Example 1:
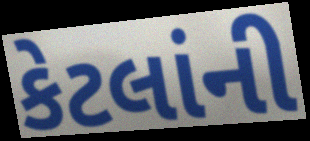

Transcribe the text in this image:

કેટલાંની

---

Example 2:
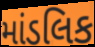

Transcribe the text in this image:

માંડલિક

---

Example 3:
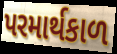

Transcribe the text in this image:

પરમાર્થકાળ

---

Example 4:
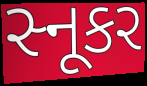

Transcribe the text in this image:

સ્નૂકર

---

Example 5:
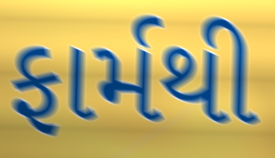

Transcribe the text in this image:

ફાર્મથી